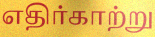
எதிர்காற்று